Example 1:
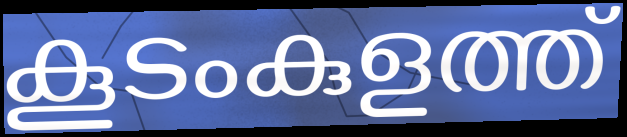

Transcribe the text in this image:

കൂടംകുളത്ത്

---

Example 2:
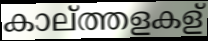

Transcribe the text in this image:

കാല്ത്തളകള്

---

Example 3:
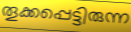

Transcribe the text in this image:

തൂക്കപ്പെട്ടിരുന്ന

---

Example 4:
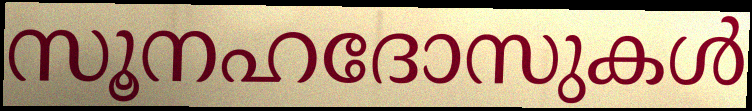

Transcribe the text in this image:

സൂനഹദോസുകൾ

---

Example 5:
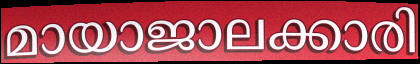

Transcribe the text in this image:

മായാജാലക്കാരി